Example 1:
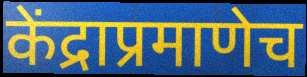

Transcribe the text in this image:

केंद्राप्रमाणेच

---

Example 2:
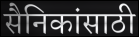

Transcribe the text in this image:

सैनिकांसाठी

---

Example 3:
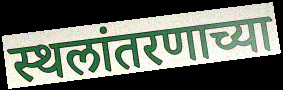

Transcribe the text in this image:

स्थलांतरणाच्या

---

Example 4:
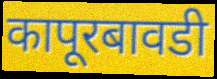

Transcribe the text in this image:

कापूरबावडी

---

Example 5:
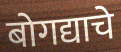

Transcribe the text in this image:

बोगद्याचे